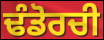
ਢੰਡੋਰਚੀ